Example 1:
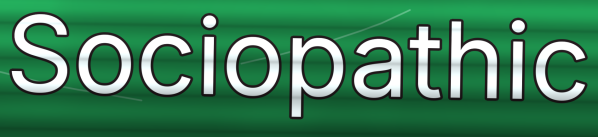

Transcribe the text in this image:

Sociopathic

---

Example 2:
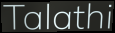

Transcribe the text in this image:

Talathi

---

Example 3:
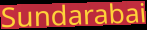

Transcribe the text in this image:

Sundarabai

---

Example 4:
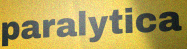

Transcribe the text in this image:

paralytica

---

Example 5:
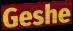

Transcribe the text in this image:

Geshe